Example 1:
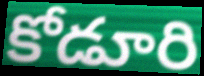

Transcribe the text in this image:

కోడూరి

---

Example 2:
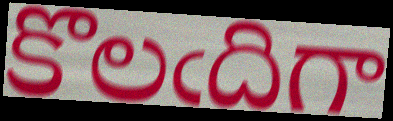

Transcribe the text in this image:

కొలఁదిగా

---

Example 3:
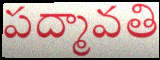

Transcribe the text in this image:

పద్మావతి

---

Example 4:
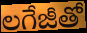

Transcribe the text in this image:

లగేజీతో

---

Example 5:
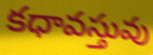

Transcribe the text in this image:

కధావస్తువు